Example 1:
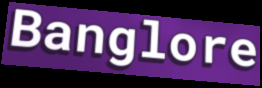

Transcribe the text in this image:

Banglore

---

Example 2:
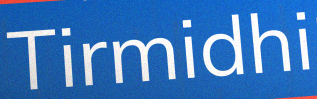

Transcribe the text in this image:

Tirmidhi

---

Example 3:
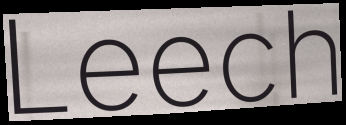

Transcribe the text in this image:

Leech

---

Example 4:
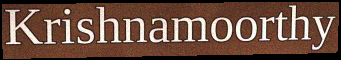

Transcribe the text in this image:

Krishnamoorthy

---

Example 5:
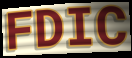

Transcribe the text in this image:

FDIC